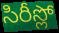
సిరీస్లో